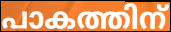
പാകത്തിന്